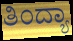
ತಿಂದ್ಯಾ